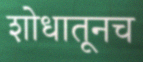
शोधातूनच